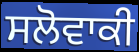
ਸਲੋਵਾਕੀ